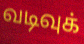
வடிவுக்